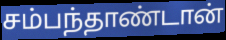
சம்பந்தாண்டான்